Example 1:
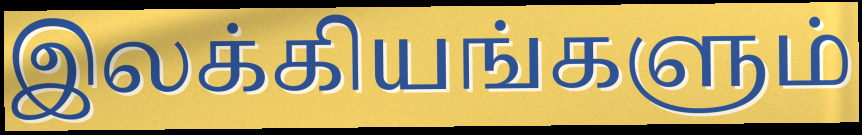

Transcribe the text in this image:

இலக்கியங்களும்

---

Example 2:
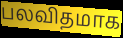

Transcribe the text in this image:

பலவிதமாக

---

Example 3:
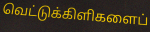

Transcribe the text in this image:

வெட்டுக்கிளிகளைப்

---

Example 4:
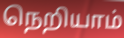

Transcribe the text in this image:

நெறியாம்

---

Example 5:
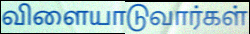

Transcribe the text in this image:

விளையாடுவார்கள்